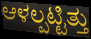
ಆಳಲ್ಪಟ್ಟಿತ್ತು